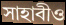
সাহাবীও